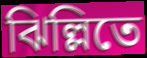
ঝিল্লিতে